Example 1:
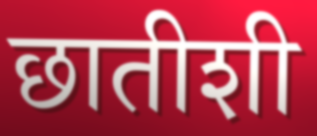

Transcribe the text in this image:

छातीशी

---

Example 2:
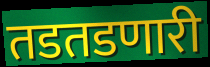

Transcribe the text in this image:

तडतडणारी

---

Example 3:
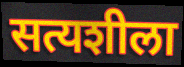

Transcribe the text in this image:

सत्यशीला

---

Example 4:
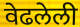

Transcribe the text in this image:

वेढलेली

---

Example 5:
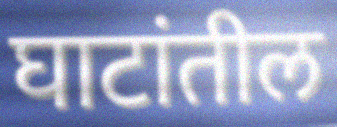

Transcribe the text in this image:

घाटांतील